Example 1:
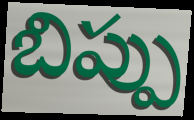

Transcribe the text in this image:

బిప్పు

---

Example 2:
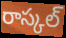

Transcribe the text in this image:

రాస్కల్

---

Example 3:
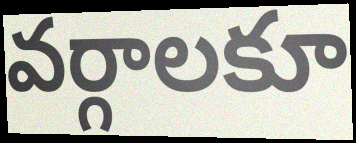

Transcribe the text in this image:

వర్గాలకూ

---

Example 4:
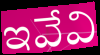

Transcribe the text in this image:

ఇవేవి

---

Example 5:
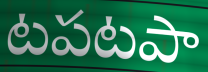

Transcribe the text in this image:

టపటపా